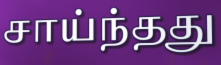
சாய்ந்தது